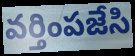
వర్తింపజేసి